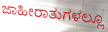
ಜಾಹೀರಾತುಗಳಲ್ಲೂ